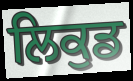
ਲਿਕੁਡ